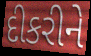
દીકરીને